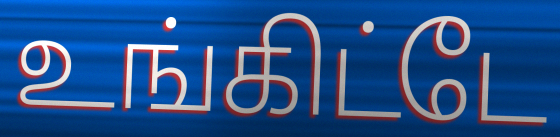
உங்கிட்டே